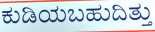
ಕುಡಿಯಬಹುದಿತ್ತು